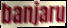
banjaru